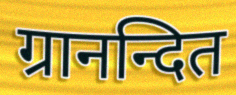
ग्रानन्दित